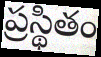
ప్రస్థితం